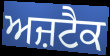
ਅਜ਼ਟੈਕ